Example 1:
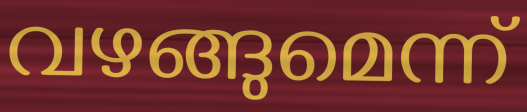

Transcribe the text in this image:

വഴങ്ങുമെന്ന്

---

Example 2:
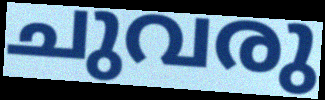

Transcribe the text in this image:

ചുവരു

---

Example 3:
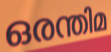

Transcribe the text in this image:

ഒരന്തിമ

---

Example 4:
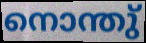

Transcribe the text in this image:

നൊന്തു്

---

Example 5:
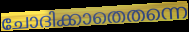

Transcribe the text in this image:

ചോദിക്കാതെതന്നെ